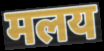
मलय